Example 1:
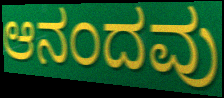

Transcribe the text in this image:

ಆನಂದವು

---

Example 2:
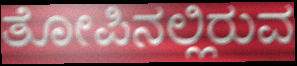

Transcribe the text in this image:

ತೋಪಿನಲ್ಲಿರುವ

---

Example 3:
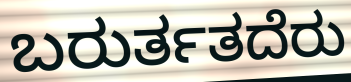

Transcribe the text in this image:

ಬರುರ್ತತದೆರು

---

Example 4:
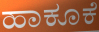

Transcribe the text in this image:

ಹಾಕೂಕೆ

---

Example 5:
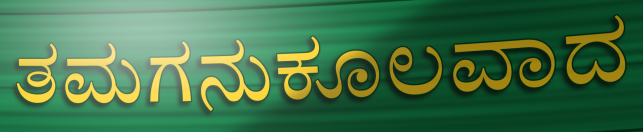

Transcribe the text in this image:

ತಮಗನುಕೂಲವಾದ